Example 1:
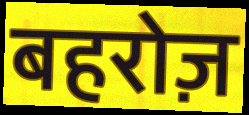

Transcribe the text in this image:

बहरोज़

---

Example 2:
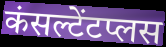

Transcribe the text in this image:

कंसल्टेंटप्लस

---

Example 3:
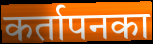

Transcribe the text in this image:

कर्तापनका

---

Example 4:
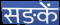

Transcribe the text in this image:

सङकें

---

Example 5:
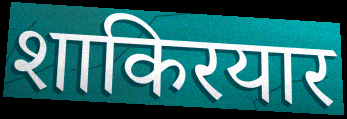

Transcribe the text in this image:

शाकिरयार